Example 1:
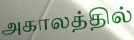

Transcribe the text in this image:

அகாலத்தில்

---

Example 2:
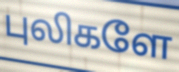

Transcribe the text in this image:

புலிகளே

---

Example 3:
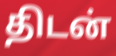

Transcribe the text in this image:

திடன்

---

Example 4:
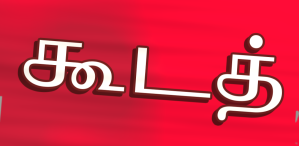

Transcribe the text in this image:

கூடத்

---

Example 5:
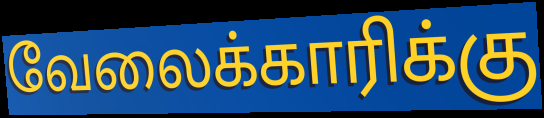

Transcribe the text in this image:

வேலைக்காரிக்கு